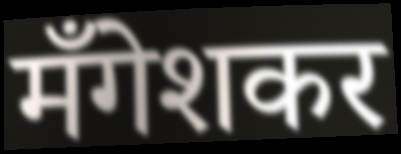
मँगेशकर